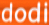
dodi